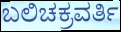
ಬಲಿಚಕ್ರವರ್ತಿ